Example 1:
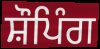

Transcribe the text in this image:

ਸ਼ੌਪਿੰਗ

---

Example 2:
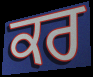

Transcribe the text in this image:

ਕਰ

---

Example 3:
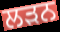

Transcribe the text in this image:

ਲਡ਼ਨ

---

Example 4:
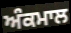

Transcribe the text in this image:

ਅੰਕਮਾਲ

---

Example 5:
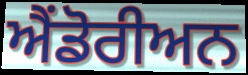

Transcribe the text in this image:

ਐਂਡੋਰੀਅਨ